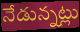
నేడున్నట్లు